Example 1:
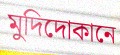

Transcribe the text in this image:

মুদিদোকানে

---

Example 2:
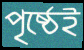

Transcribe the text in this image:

পৃষ্ঠেই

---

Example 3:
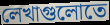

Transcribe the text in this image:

লেখাগুলোতে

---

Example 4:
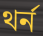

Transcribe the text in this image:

থর্ন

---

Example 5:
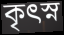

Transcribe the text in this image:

কৃৎস্ন